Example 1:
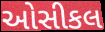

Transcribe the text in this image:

ઓસીકલ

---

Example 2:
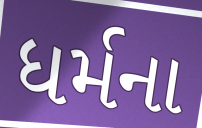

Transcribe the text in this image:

ધર્મના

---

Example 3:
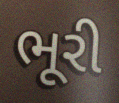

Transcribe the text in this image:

ભૂરી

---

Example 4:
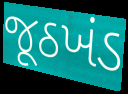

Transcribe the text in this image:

જૂઠખંડ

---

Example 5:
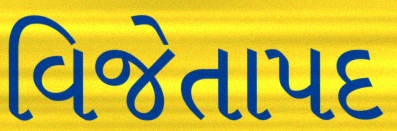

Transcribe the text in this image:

વિજેતાપદ